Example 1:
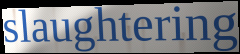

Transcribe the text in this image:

slaughtering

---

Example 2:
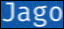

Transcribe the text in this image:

Jago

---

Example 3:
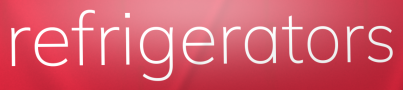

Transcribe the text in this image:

refrigerators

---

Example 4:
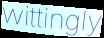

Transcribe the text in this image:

wittingly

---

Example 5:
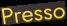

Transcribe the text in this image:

Presso